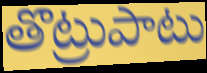
తొట్రుపాటు